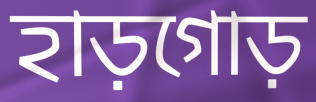
হাড়গোড়